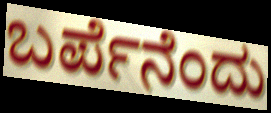
ಬರ್ಪೆನೆಂದು